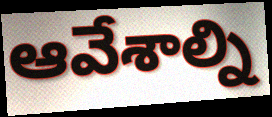
ఆవేశాల్ని